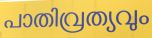
പാതിവ്രത്യവും